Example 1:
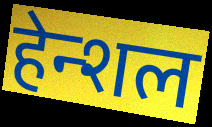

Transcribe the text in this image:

हेन्शल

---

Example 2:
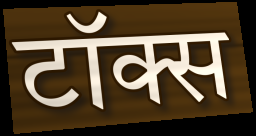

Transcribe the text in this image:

टॉक्स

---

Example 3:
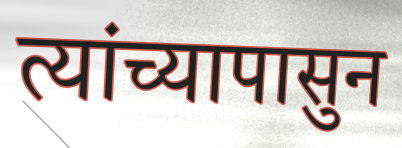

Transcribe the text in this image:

त्यांच्यापासुन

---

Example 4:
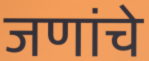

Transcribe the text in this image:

जणांचे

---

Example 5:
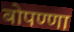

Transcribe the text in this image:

बोपण्णा